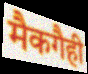
मैकगैही